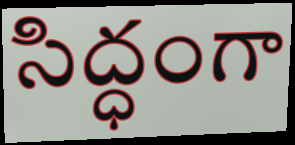
సిద్ధంగా